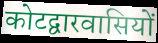
कोटद्वारवासियों